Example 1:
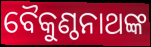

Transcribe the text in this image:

ବୈକୁଣ୍ଠନାଥଙ୍କ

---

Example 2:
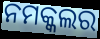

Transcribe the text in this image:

ନମକ୍କଲର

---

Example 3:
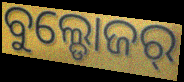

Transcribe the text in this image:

ବୁଲ୍ଡୋଜର୍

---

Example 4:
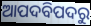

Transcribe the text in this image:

ଆପଦବିପଦରୁ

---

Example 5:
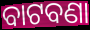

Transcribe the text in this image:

ବାଟବଣା